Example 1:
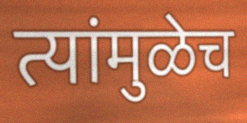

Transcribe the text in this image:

त्यांमुळेच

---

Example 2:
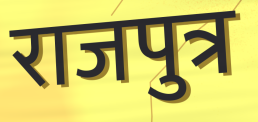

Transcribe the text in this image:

राजपुत्र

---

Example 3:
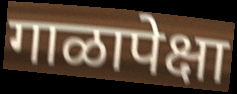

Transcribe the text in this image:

गाळापेक्षा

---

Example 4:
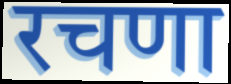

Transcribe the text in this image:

रचणा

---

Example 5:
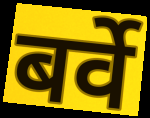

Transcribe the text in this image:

बर्वे